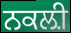
ਨਕਲ਼ੀ